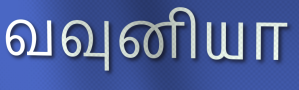
வவுனியா